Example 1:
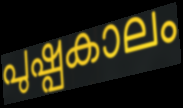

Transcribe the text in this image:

പുഷ്പകാലം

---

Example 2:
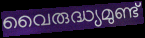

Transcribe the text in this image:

വൈരുദ്ധ്യമുണ്ട്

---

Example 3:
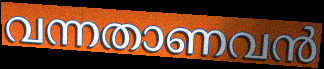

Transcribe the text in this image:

വന്നതാണവൻ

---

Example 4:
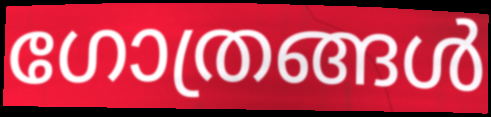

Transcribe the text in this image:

ഗോത്രങ്ങൾ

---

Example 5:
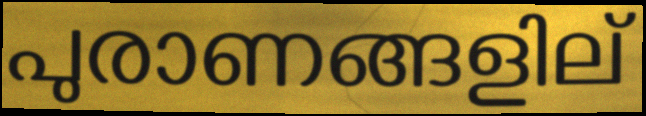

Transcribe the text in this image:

പുരാണങ്ങളില്